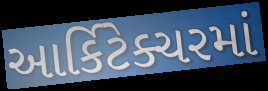
આર્કિટેક્ચરમાં